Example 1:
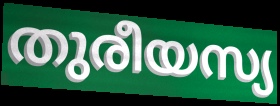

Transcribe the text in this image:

തുരീയസ്യ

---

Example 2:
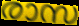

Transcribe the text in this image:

രാസ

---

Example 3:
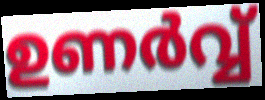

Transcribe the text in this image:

ഉണർവ്വ്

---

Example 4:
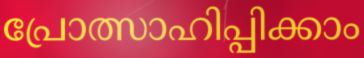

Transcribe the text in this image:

പ്രോത്സാഹിപ്പിക്കാം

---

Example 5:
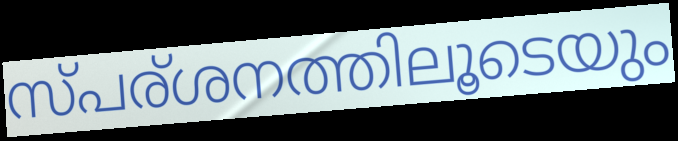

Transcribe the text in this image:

സ്പര്ശനത്തിലൂടെയും